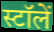
स्टॉलें